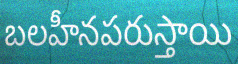
బలహీనపరుస్తాయి